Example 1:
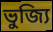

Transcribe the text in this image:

ভুজ্যি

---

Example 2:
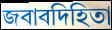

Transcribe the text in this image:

জবাবদিহিতা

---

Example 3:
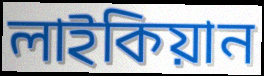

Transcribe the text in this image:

লাইকিয়ান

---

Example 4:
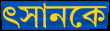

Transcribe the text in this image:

ৎসানকে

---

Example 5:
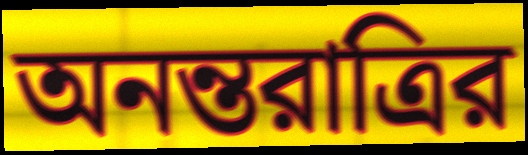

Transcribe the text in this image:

অনন্তরাত্রির